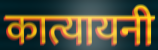
कात्यायनी